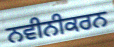
ਨਵੀਨੀਕਰਨ